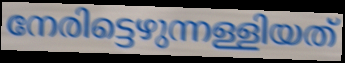
നേരിട്ടെഴുന്നള്ളിയത്